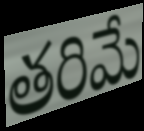
తరిమే